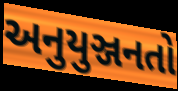
અનુયુઞ્જનતો